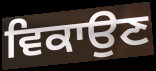
ਵਿਕਾਉਣ